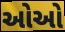
ઓઓ